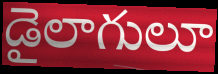
డైలాగులూ